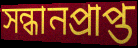
সন্ধানপ্রাপ্ত